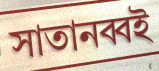
সাতানব্বই